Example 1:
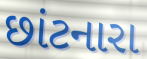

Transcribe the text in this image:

છાંટનારા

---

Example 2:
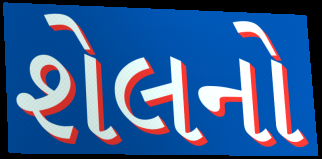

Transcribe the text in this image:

શેલનો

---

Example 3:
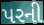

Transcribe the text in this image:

પરની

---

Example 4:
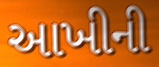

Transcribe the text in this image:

આખીની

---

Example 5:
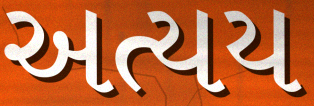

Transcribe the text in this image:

અત્યય